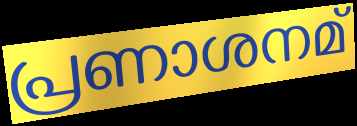
പ്രണാശനമ്